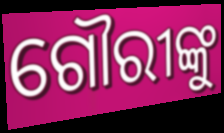
ଗୌରୀଙ୍କୁ